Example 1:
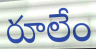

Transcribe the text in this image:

రూలేం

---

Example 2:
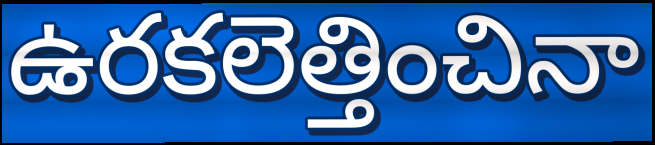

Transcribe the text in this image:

ఉరకలెత్తించినా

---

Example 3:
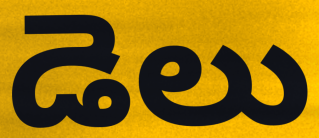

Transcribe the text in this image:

డెలు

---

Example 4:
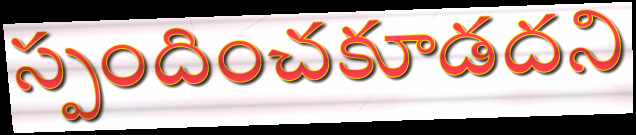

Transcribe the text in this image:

స్పందించకూడదని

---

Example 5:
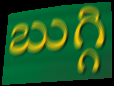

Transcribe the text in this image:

బుగ్గి